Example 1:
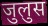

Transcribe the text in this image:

जुलुस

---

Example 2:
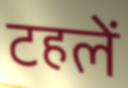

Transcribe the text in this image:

टहलें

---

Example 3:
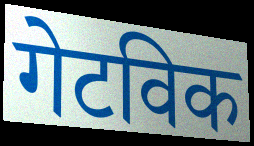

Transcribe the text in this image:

गेटविक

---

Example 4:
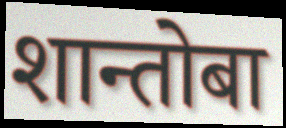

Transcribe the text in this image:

शान्तोबा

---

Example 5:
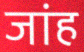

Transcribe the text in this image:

जांह